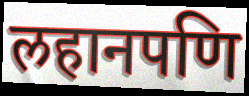
लहानपणि